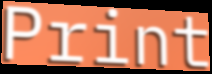
Print